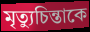
মৃত্যুচিন্তাকে